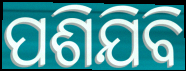
ପଶିଯିବି